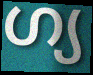
ഗ്യ